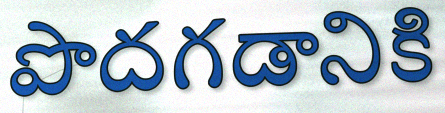
పొదగడానికి